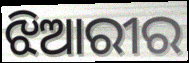
ଝିଆରୀର